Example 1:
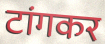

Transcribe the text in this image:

टांगकर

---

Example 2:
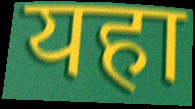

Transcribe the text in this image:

यहा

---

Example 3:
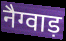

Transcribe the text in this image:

नैग्वाड़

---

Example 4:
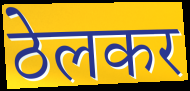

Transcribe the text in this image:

ठेलकर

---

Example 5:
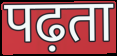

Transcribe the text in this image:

पढ़ता